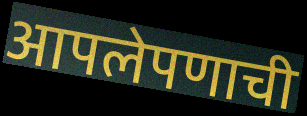
आपलेपणाची